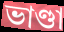
ভাণ্ডা